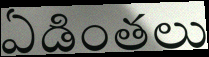
ఏడింతలు